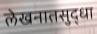
लेखनातसुद्धा